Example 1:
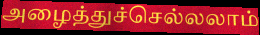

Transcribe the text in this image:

அழைத்துச்செல்லலாம்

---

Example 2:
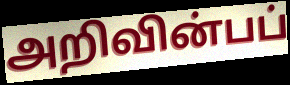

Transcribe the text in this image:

அறிவின்பப்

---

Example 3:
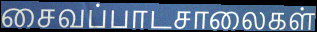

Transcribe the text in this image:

சைவப்பாடசாலைகள்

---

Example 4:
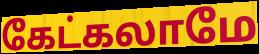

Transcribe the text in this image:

கேட்கலாமே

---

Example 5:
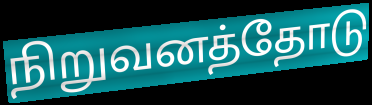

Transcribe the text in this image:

நிறுவனத்தோடு